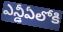
ఎన్డీఏలోకి